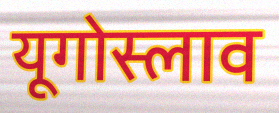
यूगोस्लाव